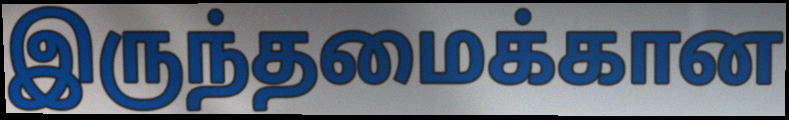
இருந்தமைக்கான